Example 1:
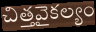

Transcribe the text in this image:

చిత్తవైకల్యం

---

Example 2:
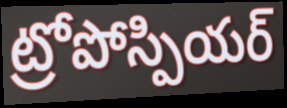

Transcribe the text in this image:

ట్రోపోస్పియర్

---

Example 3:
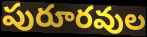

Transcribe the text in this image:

పురూరవుల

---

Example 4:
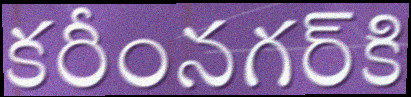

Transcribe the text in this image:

కరీంనగర్‌కి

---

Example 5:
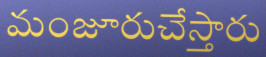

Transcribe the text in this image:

మంజూరుచేస్తారు